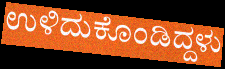
ಉಳಿದುಕೊಂಡಿದ್ದಳು